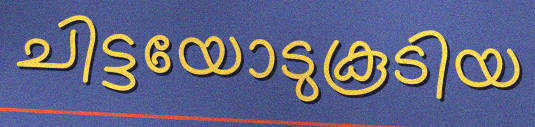
ചിട്ടയോടുകൂടിയ